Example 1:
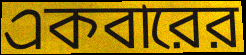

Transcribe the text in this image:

একবারের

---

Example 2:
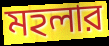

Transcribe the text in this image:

মহলার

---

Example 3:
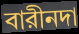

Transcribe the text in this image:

বারীনদা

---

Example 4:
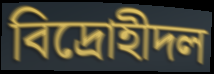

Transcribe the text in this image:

বিদ্রোহীদল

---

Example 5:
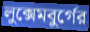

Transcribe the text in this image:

লুক্সেমবুর্গের